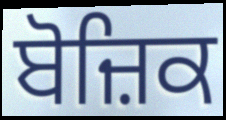
ਬੋਜ਼ਿਕ